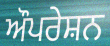
ਔਪਰੇਸ਼ਨ